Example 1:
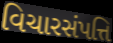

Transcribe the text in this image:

વિચારસંપત્તિ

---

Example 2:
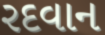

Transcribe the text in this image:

રદવાન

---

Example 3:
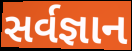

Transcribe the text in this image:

સર્વજ્ઞાન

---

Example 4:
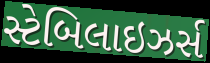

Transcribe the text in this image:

સ્ટેબિલાઇઝર્સ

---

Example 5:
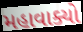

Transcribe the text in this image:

મહાવાક્યો